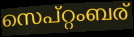
സെപ്റ്റംബര്